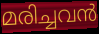
മരിച്ചവൻ